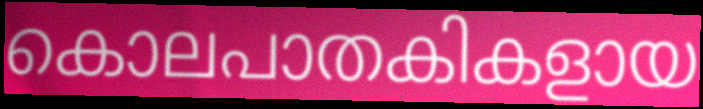
കൊലപാതകികളായ